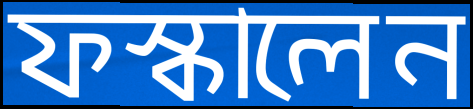
ফস্কালেন